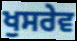
ਖੁਸਰੇਵ